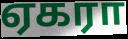
ஏகரா